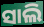
ସାଲି